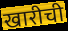
खारीची